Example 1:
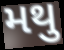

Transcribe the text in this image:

મથુ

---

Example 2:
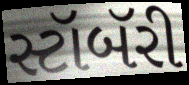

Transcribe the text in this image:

સ્ટૉબૅરી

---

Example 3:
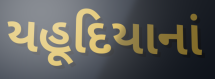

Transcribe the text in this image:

યહૂદિયાનાં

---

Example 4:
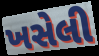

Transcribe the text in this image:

ખસેલી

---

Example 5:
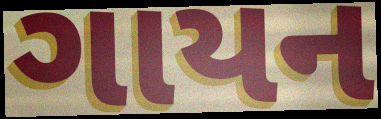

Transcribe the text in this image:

ગાયન